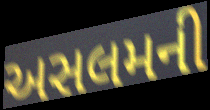
અસલમની